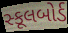
સ્કૂલબોર્ડ